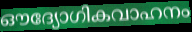
ഔദ്യോഗികവാഹനം